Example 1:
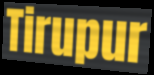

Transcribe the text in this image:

Tirupur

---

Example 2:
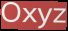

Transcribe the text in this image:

Oxyz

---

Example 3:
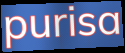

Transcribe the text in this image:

purisa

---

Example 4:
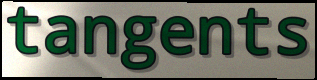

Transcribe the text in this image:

tangents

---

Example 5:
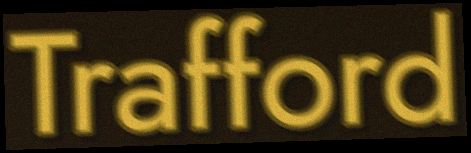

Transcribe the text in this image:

Trafford